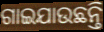
ଗାଇଯାଉଛନ୍ତି